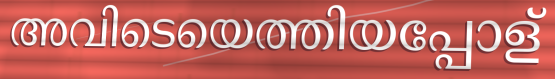
അവിടെയെത്തിയപ്പോള്